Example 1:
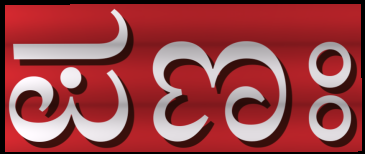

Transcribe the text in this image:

ಪಣಃ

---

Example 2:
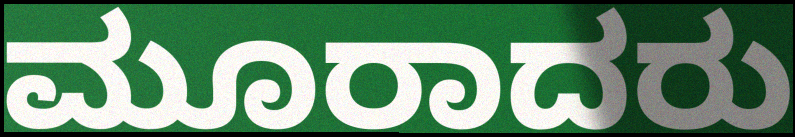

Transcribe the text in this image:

ಮೂರಾದರು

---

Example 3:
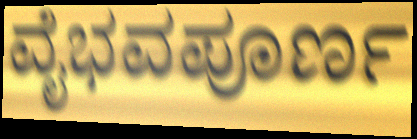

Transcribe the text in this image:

ವೈಭವಪೂರ್ಣ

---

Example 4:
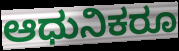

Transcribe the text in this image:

ಆಧುನಿಕರೂ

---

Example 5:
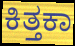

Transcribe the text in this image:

ಕಿತ್ತಕಾ